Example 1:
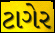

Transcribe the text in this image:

ટાગેર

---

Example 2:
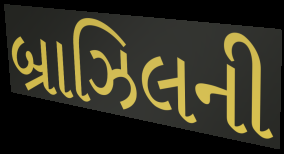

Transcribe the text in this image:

બ્રાઝિલની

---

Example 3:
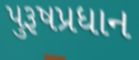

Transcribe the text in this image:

પુરૂષપ્રધાન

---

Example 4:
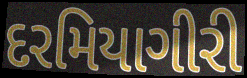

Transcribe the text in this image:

દરમિયાગીરી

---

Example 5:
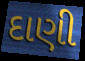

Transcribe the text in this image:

દાણી